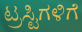
ಟ್ರಸ್ಟಿಗಳಿಗೆ